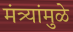
मंत्र्यांमुळे